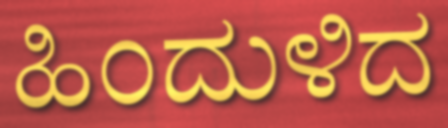
ಹಿಂದುಳಿದ